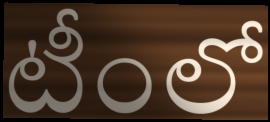
టీంలో